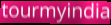
tourmyindia